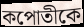
কপোতীকে